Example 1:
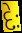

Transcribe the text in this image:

દેઃ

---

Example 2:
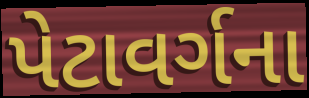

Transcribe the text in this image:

પેટાવર્ગના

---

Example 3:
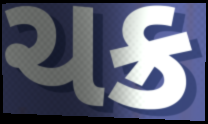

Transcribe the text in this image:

ચક્ર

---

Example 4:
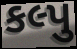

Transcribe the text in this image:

કલ્પુ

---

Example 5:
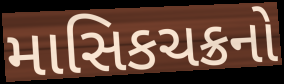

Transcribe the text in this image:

માસિકચક્રનો